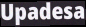
Upadesa